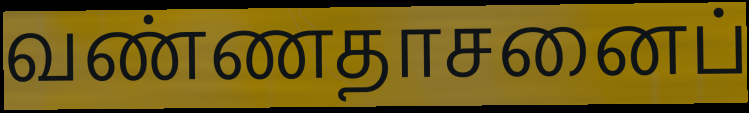
வண்ணதாசனைப்